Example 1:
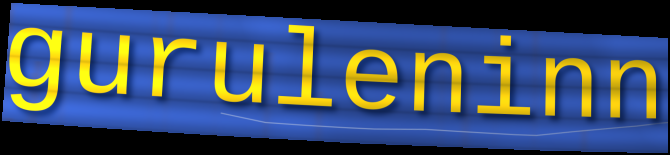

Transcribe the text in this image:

guruleninn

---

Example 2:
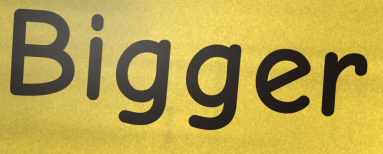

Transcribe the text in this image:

Bigger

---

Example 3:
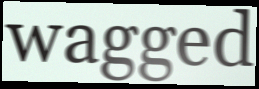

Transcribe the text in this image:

wagged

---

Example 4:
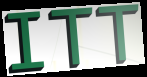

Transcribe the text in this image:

ITT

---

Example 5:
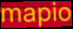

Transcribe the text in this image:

mapio